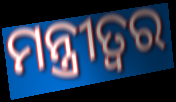
ମନ୍ତ୍ରୀତ୍ୱର